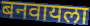
बनवायला